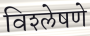
विश्लेषणे